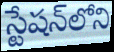
స్టేషన్‌లోని